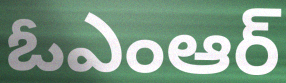
ఓఎంఆర్